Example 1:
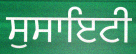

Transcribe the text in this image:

ਸੁਸਾਇਟੀ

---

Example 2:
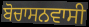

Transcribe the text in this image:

ਬੋਚਾਸਨਵਾਸੀ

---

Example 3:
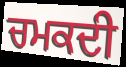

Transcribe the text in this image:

ਚਮਕਦੀ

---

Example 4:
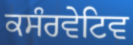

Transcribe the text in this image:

ਕਸੰਰਵੇਟਿਵ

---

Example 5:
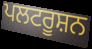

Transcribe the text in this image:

ਪਲਟਰੂਸ਼ਨ